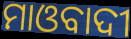
ମାଓବାଦୀ